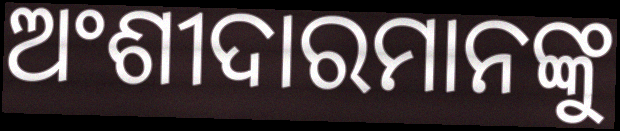
ଅଂଶୀଦାରମାନଙ୍କୁ